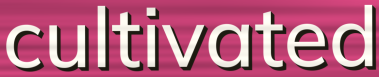
cultivated